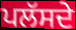
ਪਲੱਸਦੇ